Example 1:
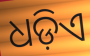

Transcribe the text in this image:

ଧଡ଼ିଏ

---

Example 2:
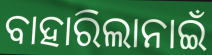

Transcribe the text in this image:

ବାହାରିଲାନାଇଁ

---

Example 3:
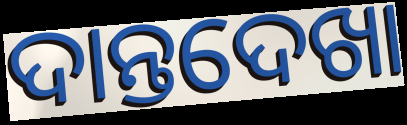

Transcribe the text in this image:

ଦାନ୍ତଦେଖା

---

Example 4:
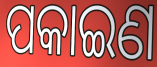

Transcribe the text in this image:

ପକାଇଣ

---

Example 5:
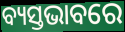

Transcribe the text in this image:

ବ୍ୟସ୍ତଭାବରେ